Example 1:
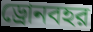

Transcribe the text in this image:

ড্রোনবহর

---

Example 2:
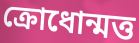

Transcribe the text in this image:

ক্রোধোন্মত্ত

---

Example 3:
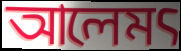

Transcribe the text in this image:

আলেমৎ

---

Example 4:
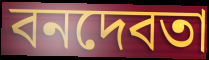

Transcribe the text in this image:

বনদেবতা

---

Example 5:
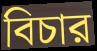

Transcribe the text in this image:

বিচার